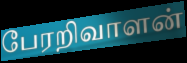
பேரறிவாளன்